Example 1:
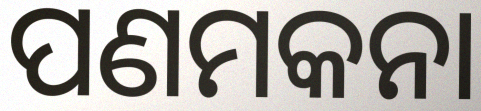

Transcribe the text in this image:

ପଣମକନା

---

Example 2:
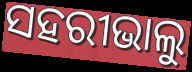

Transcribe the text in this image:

ସହରୀଭାଲୁ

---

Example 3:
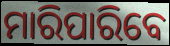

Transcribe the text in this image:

ମାରିପାରିବେ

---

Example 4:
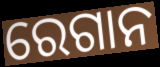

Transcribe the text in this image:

ରେଗାନ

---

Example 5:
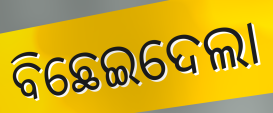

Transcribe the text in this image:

ବିଛେଇଦେଲା